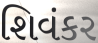
શિવંકર